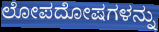
ಲೋಪದೋಷಗಳನ್ನು